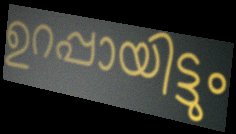
ഉറപ്പായിട്ടും